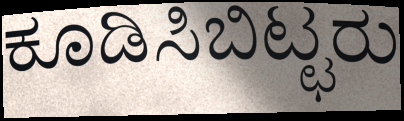
ಕೂಡಿಸಿಬಿಟ್ಟರು